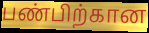
பண்பிற்கான